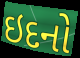
ઇદનો